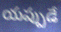
యప్పుడే